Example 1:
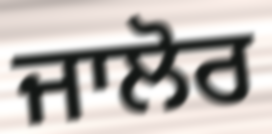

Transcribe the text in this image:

ਜਾਲੋਰ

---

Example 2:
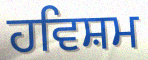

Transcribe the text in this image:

ਹਵਿਸ਼ਮ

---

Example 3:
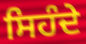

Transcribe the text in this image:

ਸਿਹੰਦੇ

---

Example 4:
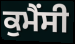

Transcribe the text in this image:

ਕੁਮੈਂਸੀ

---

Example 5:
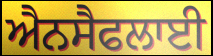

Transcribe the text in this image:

ਐਨਸੈਫਲਾਈ